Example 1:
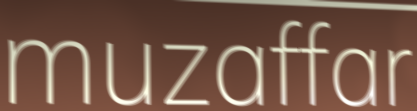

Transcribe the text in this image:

muzaffar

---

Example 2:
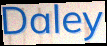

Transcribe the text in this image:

Daley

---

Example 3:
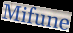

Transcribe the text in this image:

Mifune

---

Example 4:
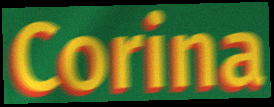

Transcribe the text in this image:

Corina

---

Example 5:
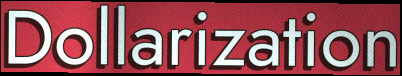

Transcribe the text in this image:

Dollarization